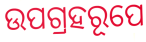
ଉପଗ୍ରହରୂପେ